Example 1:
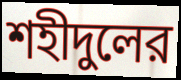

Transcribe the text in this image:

শহীদুলের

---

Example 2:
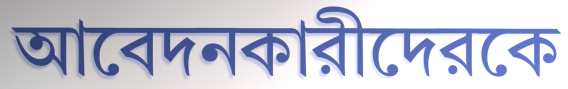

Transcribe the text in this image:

আবেদনকারীদেরকে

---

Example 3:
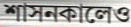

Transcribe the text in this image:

শাসনকালেও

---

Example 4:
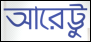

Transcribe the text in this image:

আরেট্টু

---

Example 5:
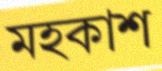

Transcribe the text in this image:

মহকাশ